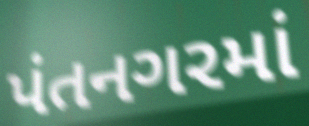
પંતનગરમાં